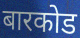
बारकोड